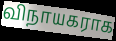
விநாயகராக